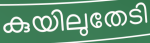
കുയിലുതേടി